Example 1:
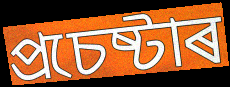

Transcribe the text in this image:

প্ৰচেষ্টাৰ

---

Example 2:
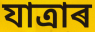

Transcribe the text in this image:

যাত্ৰাৰ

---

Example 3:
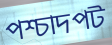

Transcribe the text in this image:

পশ্চাদপট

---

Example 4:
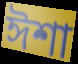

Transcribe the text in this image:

ঈশা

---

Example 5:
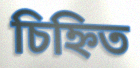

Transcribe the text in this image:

চিহ্নিত